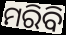
ମରିବି